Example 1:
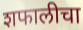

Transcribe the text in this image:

शफालीचा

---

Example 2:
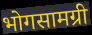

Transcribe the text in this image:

भोगसामग्री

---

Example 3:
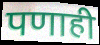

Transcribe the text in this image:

पणाही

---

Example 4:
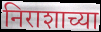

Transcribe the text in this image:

निराशाच्या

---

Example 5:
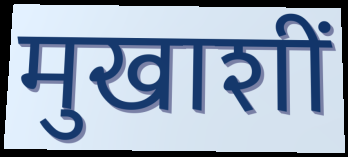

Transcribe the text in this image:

मुखाशीं